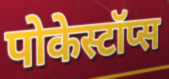
पोकेस्टॉप्स